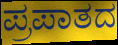
ಪ್ರಪಾತದ